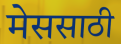
मेससाठी